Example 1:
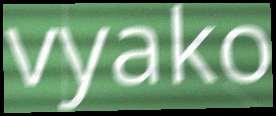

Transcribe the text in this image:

vyako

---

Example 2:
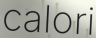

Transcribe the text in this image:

calori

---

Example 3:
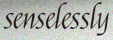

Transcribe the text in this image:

senselessly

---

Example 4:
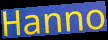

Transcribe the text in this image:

Hanno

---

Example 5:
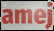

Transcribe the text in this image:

amej